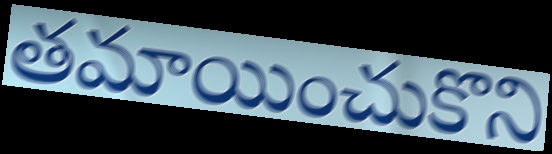
తమాయించుకొని